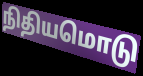
நிதியமொடு